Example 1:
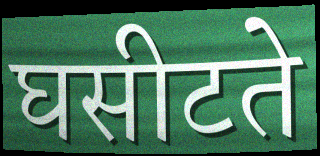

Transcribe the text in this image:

घसीटते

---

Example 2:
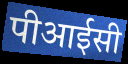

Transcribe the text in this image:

पीआईसी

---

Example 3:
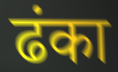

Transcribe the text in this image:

ढंका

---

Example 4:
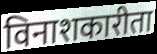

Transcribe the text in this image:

विनाशकारीता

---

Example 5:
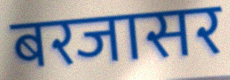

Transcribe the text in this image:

बरजासर